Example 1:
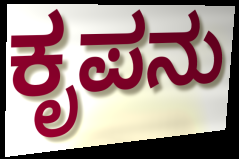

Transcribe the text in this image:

ಕೃಪನು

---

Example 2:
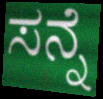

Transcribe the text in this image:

ಸನ್ನೆ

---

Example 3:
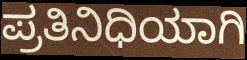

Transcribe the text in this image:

ಪ್ರತಿನಿಧಿಯಾಗಿ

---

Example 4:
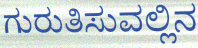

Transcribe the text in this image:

ಗುರುತಿಸುವಲ್ಲಿನ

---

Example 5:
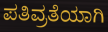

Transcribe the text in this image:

ಪತಿವ್ರತೆಯಾಗಿ